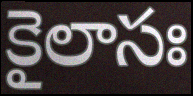
కైలాసః